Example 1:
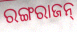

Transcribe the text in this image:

ରଙ୍ଗରାଜନ୍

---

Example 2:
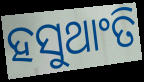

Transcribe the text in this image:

ହସୁଥାଂତି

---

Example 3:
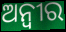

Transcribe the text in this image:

ଅନ୍ୱୀର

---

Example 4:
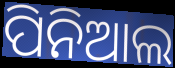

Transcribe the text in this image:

ପିନିଆଲ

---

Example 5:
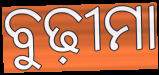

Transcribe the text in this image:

ବୁଢ଼ୀମା